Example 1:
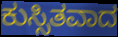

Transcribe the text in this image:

ಕುಸ್ಸಿತವಾದ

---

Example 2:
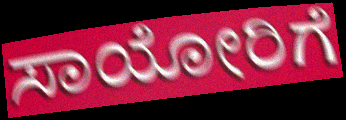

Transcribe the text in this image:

ಸಾಯೋರಿಗೆ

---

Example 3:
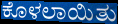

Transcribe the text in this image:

ಕೊಳಲಾಯಿತು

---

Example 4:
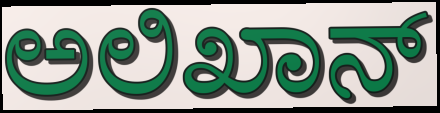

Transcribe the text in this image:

ಅಲಿಖಾನ್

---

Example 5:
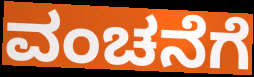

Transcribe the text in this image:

ವಂಚನೆಗೆ